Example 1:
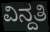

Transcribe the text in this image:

ವಿನ್ದತಿ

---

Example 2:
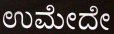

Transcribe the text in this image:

ಉಮೇದೇ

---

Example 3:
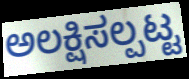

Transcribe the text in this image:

ಅಲಕ್ಷಿಸಲ್ಪಟ್ಟ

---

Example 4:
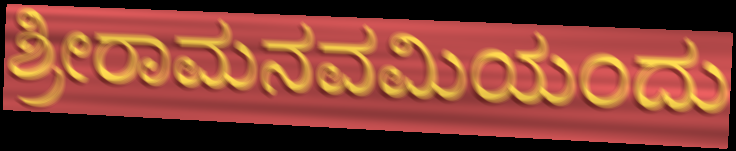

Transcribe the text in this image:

ಶ್ರೀರಾಮನವಮಿಯಂದು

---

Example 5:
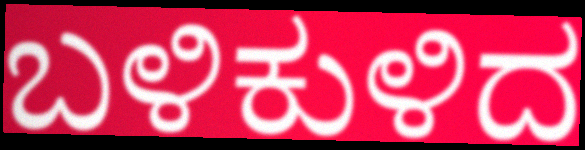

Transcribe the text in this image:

ಬಳಿಕುಳಿದ